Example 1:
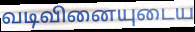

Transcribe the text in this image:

வடிவினையுடைய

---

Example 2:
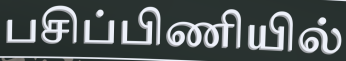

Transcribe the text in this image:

பசிப்பிணியில்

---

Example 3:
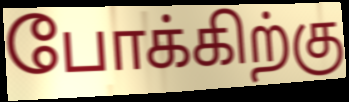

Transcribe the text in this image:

போக்கிற்கு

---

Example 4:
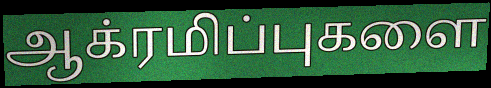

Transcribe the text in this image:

ஆக்ரமிப்புகளை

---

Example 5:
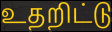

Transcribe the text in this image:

உதறிட்டு